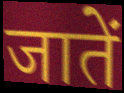
जातें